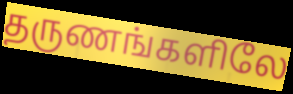
தருணங்களிலே